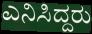
ಎನಿಸಿದ್ದರು